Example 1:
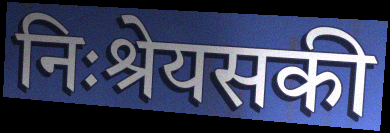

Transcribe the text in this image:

निःश्रेयसकी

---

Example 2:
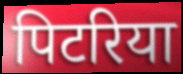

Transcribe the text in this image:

पिटरिया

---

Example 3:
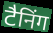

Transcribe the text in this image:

टैनिंग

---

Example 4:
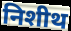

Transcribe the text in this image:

निशीथ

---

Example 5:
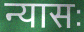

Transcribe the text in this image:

न्यासः